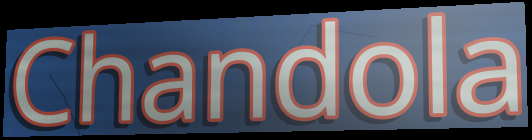
Chandola